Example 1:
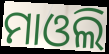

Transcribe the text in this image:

ମାଓଲି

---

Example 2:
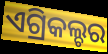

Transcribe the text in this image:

ଏଗ୍ରିକଲ୍ଚର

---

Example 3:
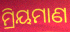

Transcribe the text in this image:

ମ୍ରିୟମାଣ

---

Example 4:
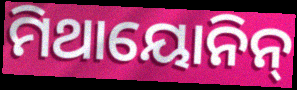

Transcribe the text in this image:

ମିଥାୟୋନିନ୍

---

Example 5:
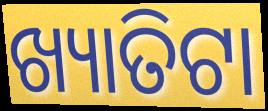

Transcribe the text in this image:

ଖ୍ୟାତିଟା